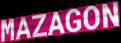
MAZAGON